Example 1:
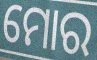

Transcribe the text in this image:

ମୋର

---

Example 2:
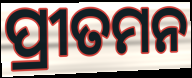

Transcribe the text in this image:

ପ୍ରୀତମନ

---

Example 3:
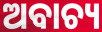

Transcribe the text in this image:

ଅବାଚ୍ୟ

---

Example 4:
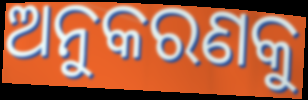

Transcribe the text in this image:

ଅନୁକରଣକୁ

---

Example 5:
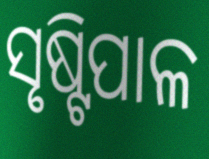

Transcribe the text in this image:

ସୃଷ୍ଟିପାଳ